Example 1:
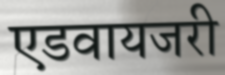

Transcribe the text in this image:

एडवायजरी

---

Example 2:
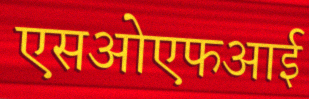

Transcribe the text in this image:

एसओएफआई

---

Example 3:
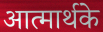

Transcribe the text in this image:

आत्मार्थके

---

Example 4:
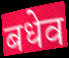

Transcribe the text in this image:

बधेव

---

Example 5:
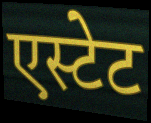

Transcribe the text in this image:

एस्टेट